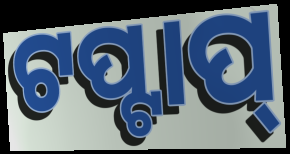
ଟପ୍ଟାପ୍